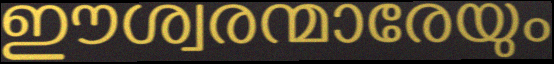
ഈശ്വരന്മാരേയും